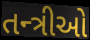
તન્ત્રીઓ